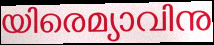
യിരെമ്യാവിനു